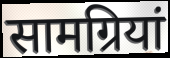
सामग्रियां